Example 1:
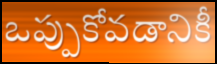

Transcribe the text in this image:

ఒప్పుకోవడానికీ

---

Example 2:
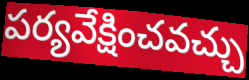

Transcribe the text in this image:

పర్యవేక్షించవచ్చు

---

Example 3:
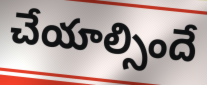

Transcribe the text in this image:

చేయాల్సిందే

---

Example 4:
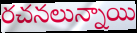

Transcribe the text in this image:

రచనలున్నాయి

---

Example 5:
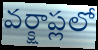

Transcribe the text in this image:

వర్క్షాప్లలో